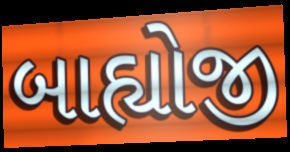
બાહ્યોજી